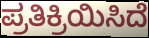
ಪ್ರತಿಕ್ರಿಯಿಸಿದೆ